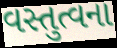
વસ્તુત્વના